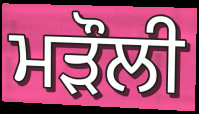
ਮੜੌਲੀ